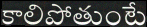
కాలిపోతుంటే